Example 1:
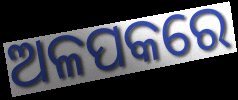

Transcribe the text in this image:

ଅଳପକରେ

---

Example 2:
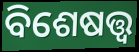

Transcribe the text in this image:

ବିଶେଷତ୍ତ୍ୱ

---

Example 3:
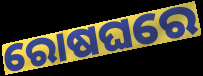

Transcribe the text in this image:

ରୋଷଘରେ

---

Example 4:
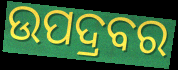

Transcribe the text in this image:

ଉପଦ୍ରବର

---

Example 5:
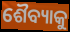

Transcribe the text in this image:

ଶୈବ୍ୟାକୁ